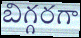
బిగ్గరగా